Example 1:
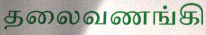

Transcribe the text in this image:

தலைவணங்கி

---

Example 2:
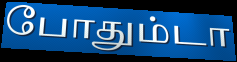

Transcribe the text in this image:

போதும்டா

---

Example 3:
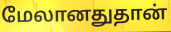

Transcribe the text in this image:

மேலானதுதான்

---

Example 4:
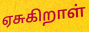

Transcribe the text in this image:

ஏசுகிறாள்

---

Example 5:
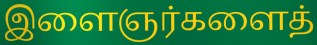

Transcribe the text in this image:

இளைஞர்களைத்